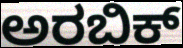
ಅರಬಿಕ್